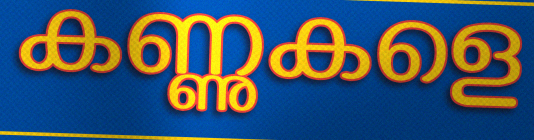
കണ്ണുകളെ